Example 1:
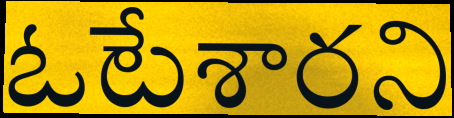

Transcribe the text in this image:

ఓటేశారని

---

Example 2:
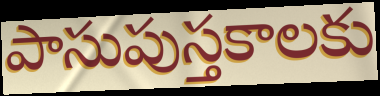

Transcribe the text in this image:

పాసుపుస్తకాలకు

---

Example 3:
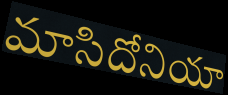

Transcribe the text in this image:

మాసిదోనియా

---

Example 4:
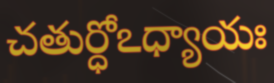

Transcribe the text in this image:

చతుర్ధోఽధ్యాయః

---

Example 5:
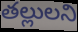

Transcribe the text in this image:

తల్లులని